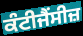
ਕੰਟੀਜੈਂਸੀਜ਼